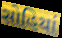
સોહિયાં